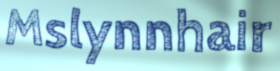
Mslynnhair